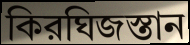
কিরঘিজস্তান